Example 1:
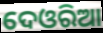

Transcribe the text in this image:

ଦେଓରିଆ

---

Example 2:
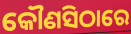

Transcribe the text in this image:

କୌଣସିଠାରେ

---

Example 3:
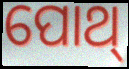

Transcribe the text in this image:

ପୋଥ୍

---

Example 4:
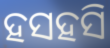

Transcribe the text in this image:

ହସହସି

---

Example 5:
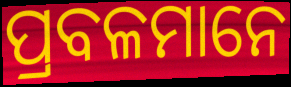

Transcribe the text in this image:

ପ୍ରବଳମାନେ